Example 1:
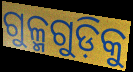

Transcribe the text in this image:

ଗୁଳ୍ମଗୁଡ଼ିକୁ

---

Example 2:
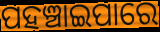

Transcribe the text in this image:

ପହଞ୍ଚାଇପାରେ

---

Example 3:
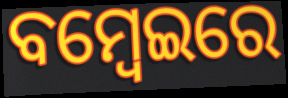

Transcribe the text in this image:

ବମ୍ବେଇରେ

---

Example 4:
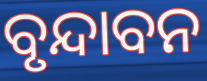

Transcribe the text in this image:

ବୃନ୍ଦାବନ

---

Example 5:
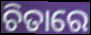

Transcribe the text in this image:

ଚିତାରେ